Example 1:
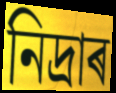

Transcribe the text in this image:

নিদ্ৰাৰ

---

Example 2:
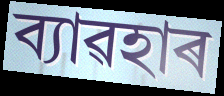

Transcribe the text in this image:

ব্যাৱহাৰ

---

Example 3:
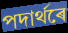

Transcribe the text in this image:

পদাৰ্থৰে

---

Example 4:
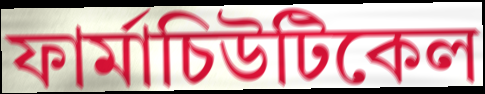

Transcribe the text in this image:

ফাৰ্মাচিউটিকেল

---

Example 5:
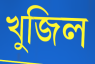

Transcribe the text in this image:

খুজিল